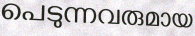
പെടുന്നവരുമായ